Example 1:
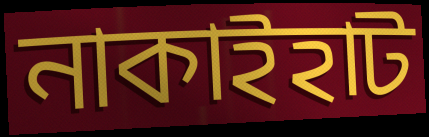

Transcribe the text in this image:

নাকাইহাট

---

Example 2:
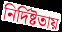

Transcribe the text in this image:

নির্দিষ্টতায়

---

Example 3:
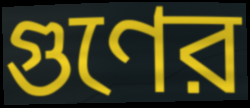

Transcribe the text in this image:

গুণের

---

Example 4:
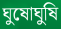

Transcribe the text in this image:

ঘুষোঘুষি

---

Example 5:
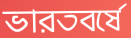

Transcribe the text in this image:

ভারতবর্ষে